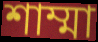
শাম্মা